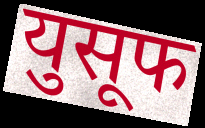
युसूफ